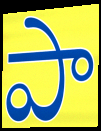
పా